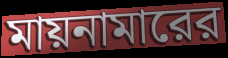
মায়নামারের